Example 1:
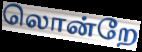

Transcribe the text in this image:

லொன்றே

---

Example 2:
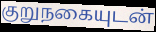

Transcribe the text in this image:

குறுநகையுடன்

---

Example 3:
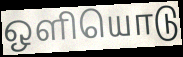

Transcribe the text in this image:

ஒளியொடு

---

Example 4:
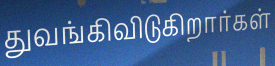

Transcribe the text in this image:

துவங்கிவிடுகிறார்கள்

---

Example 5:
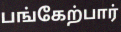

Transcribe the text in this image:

பங்கேற்பார்